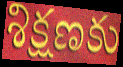
శిక్షణకు